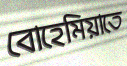
বোহেমিয়াতে